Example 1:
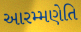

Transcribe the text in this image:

આરમ્મણેતિ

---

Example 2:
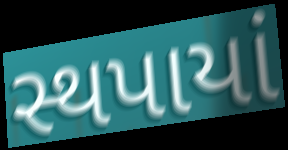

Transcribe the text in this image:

સ્થપાયાં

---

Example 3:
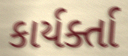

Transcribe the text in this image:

કાર્યર્ક્તા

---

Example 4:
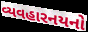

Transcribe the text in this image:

વ્યવહારનયનો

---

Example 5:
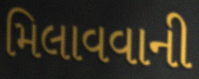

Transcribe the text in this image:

મિલાવવાની